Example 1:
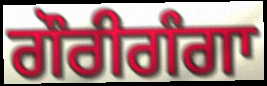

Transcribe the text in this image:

ਗੌਰੀਗੰਗਾ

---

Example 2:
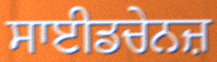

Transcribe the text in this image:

ਸਾਈਡਚੇਨਜ਼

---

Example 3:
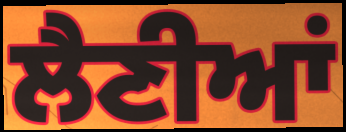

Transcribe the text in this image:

ਲੈਣੀਆਂ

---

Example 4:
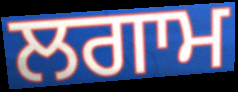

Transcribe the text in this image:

ਲਗਾਮ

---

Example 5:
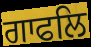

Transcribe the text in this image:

ਗਾਫਲਿ